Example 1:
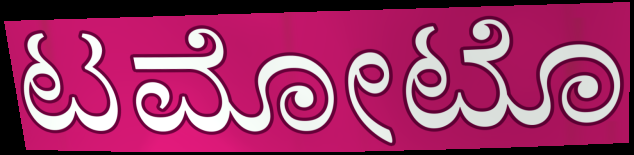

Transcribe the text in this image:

ಟಮೋಟೊ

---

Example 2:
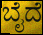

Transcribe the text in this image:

ಬೈದೆ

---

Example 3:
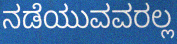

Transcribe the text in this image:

ನಡೆಯುವವರಲ್ಲ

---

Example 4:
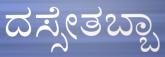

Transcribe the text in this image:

ದಸ್ಸೇತಬ್ಬಾ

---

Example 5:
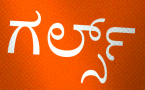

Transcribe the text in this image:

ಗರ್ಲ್ಸ್